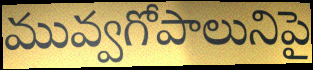
మువ్వగోపాలునిపై